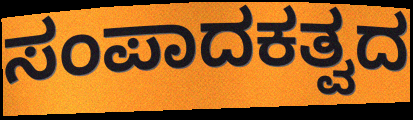
ಸಂಪಾದಕತ್ವದ